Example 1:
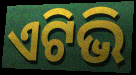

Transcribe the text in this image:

ଏଟିଭି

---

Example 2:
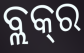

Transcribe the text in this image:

ବ୍ଲକ୍‍ର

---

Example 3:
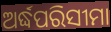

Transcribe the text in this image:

ଅର୍ଦ୍ଧପରିସୀମା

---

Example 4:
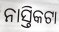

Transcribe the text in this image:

ନାସ୍ତିକଟା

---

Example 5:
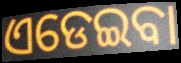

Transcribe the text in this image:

ଏଡେଇବା